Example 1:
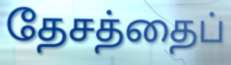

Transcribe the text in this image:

தேசத்தைப்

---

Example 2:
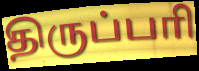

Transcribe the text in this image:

திருப்பரி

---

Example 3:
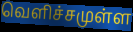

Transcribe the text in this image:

வெளிச்சமுள்ள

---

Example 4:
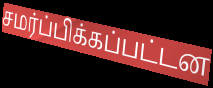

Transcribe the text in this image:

சமர்ப்பிக்கப்பட்டன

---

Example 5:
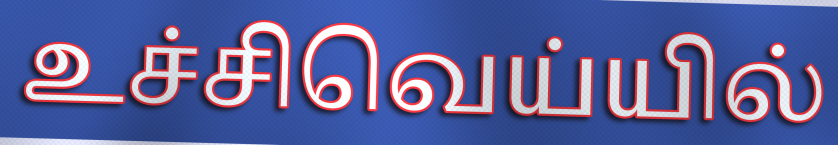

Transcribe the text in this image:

உச்சிவெய்யில்